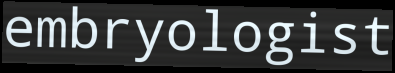
embryologist